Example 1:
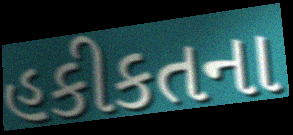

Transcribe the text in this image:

હકીકતના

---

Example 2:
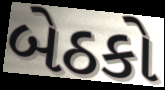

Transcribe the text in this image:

બેઠકો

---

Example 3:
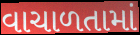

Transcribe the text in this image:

વાચાળતામાં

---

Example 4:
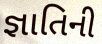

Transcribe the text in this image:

જ્ઞાતિની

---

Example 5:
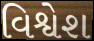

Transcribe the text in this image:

વિશ્વેશ